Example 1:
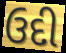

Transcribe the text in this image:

ઉદી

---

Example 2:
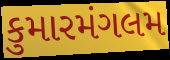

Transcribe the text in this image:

કુમારમંગલમ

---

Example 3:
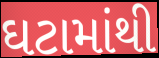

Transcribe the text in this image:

ઘટામાંથી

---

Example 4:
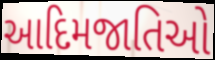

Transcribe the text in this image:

આદિમજાતિઓ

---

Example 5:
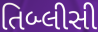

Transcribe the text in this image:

તિબ્લીસી